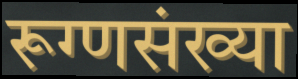
रूग्णसंख्या